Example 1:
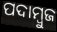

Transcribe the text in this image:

ପଦାମ୍ବୁଜ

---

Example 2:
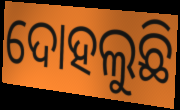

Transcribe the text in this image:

ଦୋହଲୁଛି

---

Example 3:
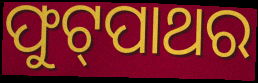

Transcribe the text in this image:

ଫୁଟ୍‌ପାଥର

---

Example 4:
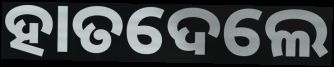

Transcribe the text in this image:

ହାତଦେଲେ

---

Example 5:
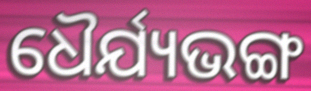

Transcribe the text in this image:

ଧୈର୍ଯ୍ୟଭଙ୍ଗ